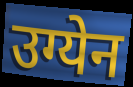
उग्येन